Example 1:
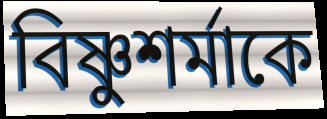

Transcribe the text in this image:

বিষ্ণুশর্মাকে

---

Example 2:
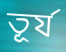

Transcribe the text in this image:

তূর্য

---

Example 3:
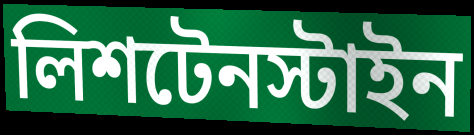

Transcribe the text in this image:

লিশটেনস্টাইন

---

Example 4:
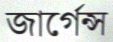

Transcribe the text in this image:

জার্গেন্স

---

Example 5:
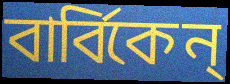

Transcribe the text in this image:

বার্বিকেন্